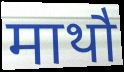
माथौ